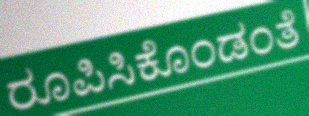
ರೂಪಿಸಿಕೊಂಡಂತೆ